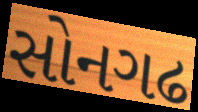
સોનગઢ